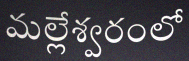
మల్లేశ్వరంలో